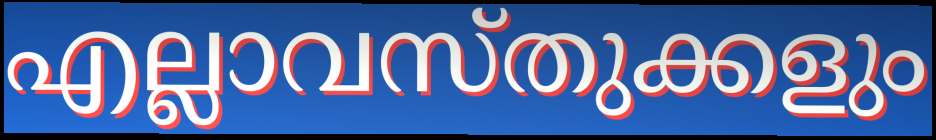
എല്ലാവസ്തുക്കളും